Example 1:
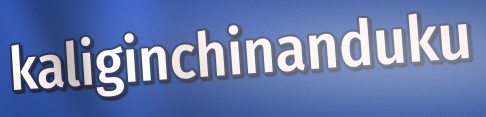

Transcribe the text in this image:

kaliginchinanduku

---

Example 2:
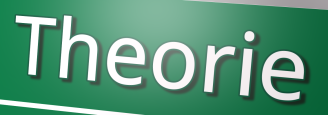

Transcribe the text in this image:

Theorie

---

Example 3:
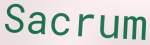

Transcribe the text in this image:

Sacrum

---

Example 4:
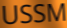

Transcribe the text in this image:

USSM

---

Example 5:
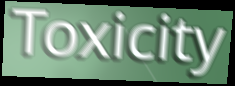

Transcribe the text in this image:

Toxicity